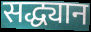
सद्ध्यान